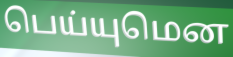
பெய்யுமென